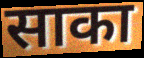
साका